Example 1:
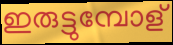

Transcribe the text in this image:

ഇരുട്ടുമ്പോള്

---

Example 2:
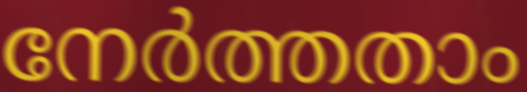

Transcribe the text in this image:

നേർത്തതാം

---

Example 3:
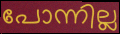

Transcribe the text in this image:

പോന്നില്ല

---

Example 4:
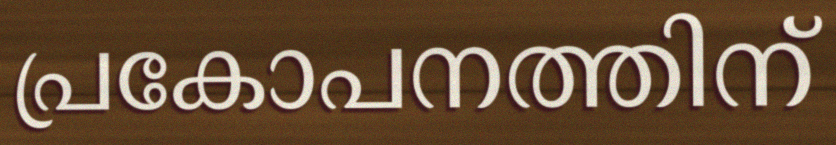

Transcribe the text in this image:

പ്രകോപനത്തിന്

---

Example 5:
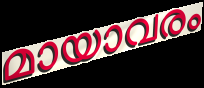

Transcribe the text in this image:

മായാവരം